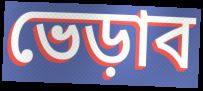
ভেড়াব